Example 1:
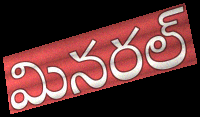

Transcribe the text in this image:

మినరల్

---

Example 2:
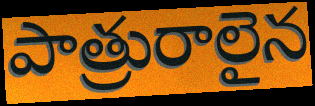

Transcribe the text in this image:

పాత్రురాలైన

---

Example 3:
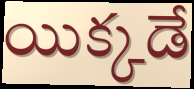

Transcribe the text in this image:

యిక్కడే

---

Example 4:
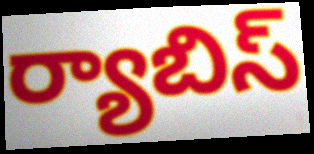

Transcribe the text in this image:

ర్యాబిస్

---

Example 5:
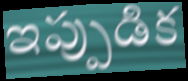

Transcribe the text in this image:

ఇప్పుడిక